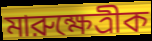
মাৰুক্ষেত্ৰীক